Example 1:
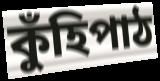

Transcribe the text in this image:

কুঁহিপাঠ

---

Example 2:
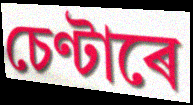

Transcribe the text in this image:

চেণ্টাৰে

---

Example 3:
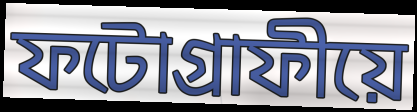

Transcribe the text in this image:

ফটোগ্ৰাফীয়ে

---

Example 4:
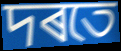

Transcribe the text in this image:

দৰতে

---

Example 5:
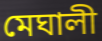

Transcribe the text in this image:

মেঘালী